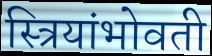
स्त्रियांभोवती